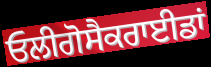
ਓਲੀਗੋਸੈਕਰਾਈਡਾਂ